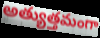
అత్యుత్తమంగా